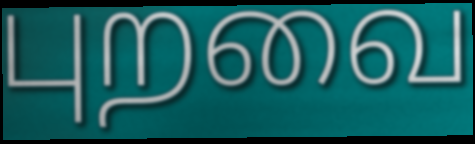
புறவை